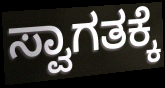
ಸ್ವಾಗತಕ್ಕೆ